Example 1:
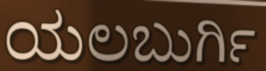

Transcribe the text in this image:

ಯಲಬುರ್ಗಿ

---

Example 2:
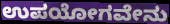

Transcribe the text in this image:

ಉಪಯೋಗವೇನು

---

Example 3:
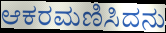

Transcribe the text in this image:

ಆಕರಮಣಿಸಿದನು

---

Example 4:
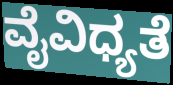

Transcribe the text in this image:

ವೈವಿಧ್ಯತೆ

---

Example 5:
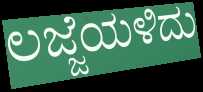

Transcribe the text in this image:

ಲಜ್ಜೆಯಳಿದು